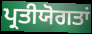
ਪ੍ਰਤੀਯੋਗਤਾਂ